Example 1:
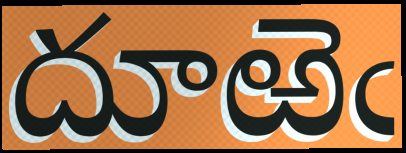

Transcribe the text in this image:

దూఱెఁ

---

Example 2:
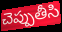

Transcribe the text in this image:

చెప్పుతీసి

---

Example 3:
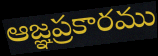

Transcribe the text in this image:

ఆజ్ఞప్రకారము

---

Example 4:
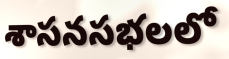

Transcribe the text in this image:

శాసనసభలలో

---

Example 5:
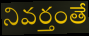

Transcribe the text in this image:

నివర్తంతే